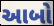
આબો